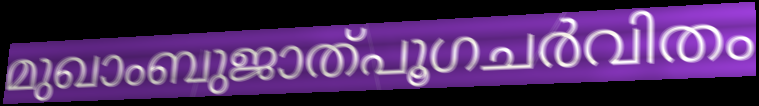
മുഖാംബുജാത്പൂഗചർവിതം